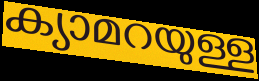
ക്യാമറയുള്ള